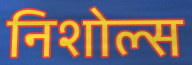
निशोल्स